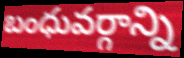
బంధువర్గాన్ని